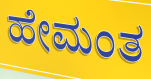
ಹೇಮಂತ